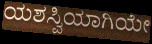
ಯಶಸ್ವಿಯಾಗಿಯೇ